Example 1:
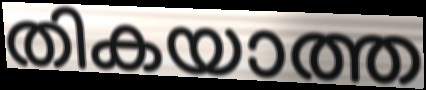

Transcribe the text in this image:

തികയാത്ത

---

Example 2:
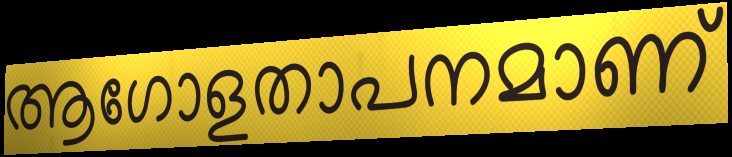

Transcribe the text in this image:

ആഗോളതാപനമാണ്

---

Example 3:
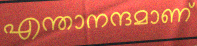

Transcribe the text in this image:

എന്താനന്ദമാണ്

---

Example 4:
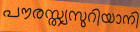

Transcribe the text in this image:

പൗരസ്ത്യസുറിയാനി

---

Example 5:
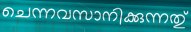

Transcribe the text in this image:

ചെന്നവസാനിക്കുന്നതു്